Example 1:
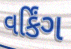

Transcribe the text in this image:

વર્કિંગ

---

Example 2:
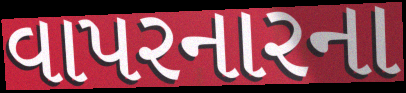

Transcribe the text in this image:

વાપરનારના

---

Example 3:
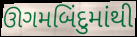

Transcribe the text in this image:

ઊગમબિંદુમાંથી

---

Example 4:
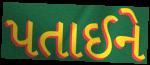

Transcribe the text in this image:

પતાઈને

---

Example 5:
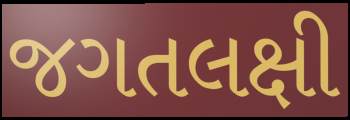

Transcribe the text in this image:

જગતલક્ષી